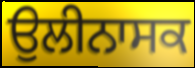
ਉਲੀਨਾਸਕ